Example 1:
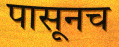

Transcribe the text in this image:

पासूनच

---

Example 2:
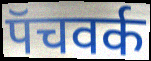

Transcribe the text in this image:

पॅचवर्क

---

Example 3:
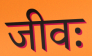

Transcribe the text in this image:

जीवः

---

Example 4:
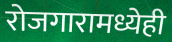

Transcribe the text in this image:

रोजगारामध्येही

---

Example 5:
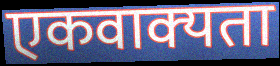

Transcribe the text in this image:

एकवाक्यता